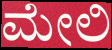
ಮೇಲಿ